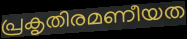
പ്രകൃതിരമണീയത